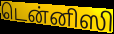
டென்னிஸி